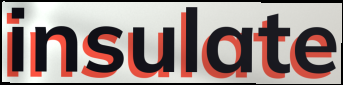
insulate